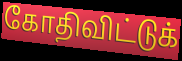
கோதிவிட்டுக்